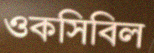
ওকসিবিল